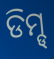
ଡିମ୍ଡ୍